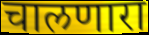
चालणारा